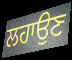
ਲਹਾਉਣ